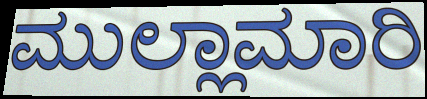
ಮುಲ್ಲಾಮಾರಿ